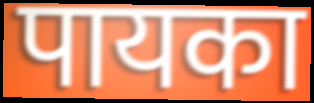
पायका